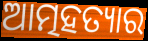
ଆତ୍ମହତ୍ୟାର